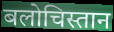
बलोचिस्तान